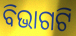
ବିଭାଗଟି